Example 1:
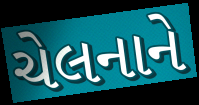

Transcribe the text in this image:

ચેલનાને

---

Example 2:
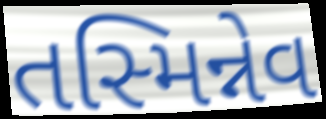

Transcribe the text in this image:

તસ્મિન્નેવ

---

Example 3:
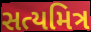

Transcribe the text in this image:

સત્યમિત્ર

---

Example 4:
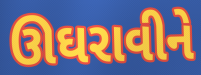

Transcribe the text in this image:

ઊઘરાવીને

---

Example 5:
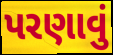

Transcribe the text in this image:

પરણાવું